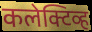
कलेक्टिव्ह